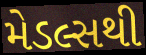
મેડલ્સથી